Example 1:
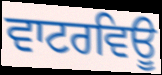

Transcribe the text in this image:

ਵਾਟਰਵਿਊ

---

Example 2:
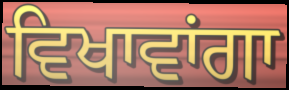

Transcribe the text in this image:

ਵਿਖਾਵਾਂਗਾ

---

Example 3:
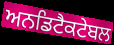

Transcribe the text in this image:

ਅਨਡਿਟੈਕਟੇਬਲ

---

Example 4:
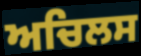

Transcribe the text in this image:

ਅਚਿਲਸ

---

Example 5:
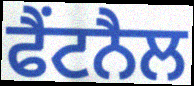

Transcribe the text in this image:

ਫੈਂਟਨੈਲ